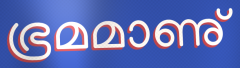
ഭ്രമമാണു്